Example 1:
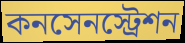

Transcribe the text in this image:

কনসেনস্ট্রেশন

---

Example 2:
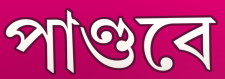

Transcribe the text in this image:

পাণ্ডবে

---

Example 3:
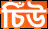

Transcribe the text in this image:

চিঁউ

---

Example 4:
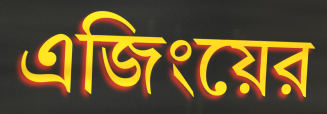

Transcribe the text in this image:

এজিংয়ের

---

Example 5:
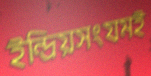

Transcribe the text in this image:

ইন্দ্রিয়সংযমই